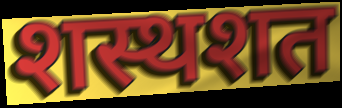
शस्थशत